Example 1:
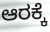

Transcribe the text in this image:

ಆರಕ್ಕೆ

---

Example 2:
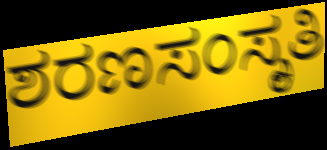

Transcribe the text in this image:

ಶರಣಸಂಸ್ಕೃತಿ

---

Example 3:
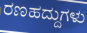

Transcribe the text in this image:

ರಣಹದ್ದುಗಳು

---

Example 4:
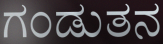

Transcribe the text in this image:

ಗಂಡುತನ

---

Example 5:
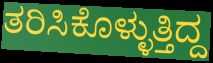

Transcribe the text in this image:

ತರಿಸಿಕೊಳ್ಳುತ್ತಿದ್ದ